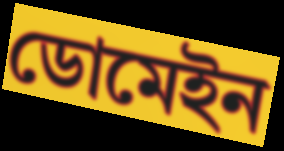
ডোমেইন